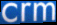
crm